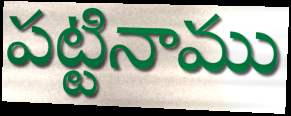
పట్టినాము